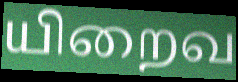
யிறைவ